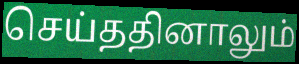
செய்ததினாலும்